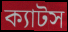
ক্যাটস